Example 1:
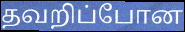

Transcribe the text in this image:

தவறிப்போன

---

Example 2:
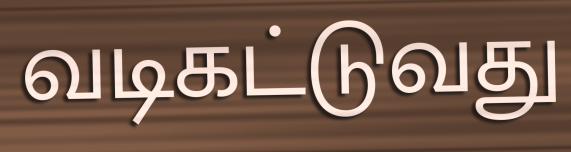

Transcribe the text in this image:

வடிகட்டுவது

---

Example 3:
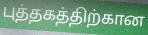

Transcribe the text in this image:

புத்தகத்திற்கான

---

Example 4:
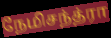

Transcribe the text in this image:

நேமிசந்த்ரா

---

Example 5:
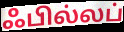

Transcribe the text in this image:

ஃபில்லப்